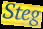
Steg